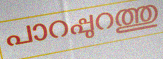
പാറപ്പുറത്തു